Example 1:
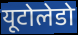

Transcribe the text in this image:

यूटोलेडो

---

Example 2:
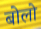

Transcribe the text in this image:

बोलो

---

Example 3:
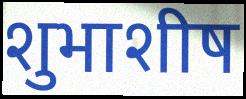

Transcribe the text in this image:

शुभाशीष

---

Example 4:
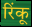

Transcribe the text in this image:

रिंकू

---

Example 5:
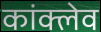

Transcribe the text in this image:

कांक्लेव